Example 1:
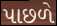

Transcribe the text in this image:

પાછળે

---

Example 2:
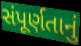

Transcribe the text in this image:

સંપૂર્ણતાનું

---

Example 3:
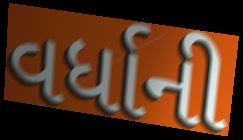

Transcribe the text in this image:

વર્ધાની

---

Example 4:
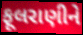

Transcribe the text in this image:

ફૂલરાણીને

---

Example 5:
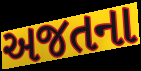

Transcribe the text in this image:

અજતના